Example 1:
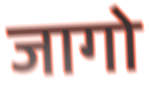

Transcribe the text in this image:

जागो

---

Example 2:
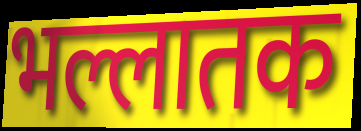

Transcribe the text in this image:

भल्लातक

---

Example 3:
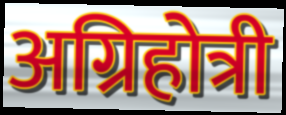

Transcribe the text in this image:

अग्रिहोत्री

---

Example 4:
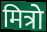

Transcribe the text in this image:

मित्रो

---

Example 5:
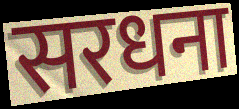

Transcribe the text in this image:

सरधना